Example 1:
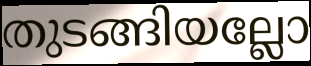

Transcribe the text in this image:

തുടങ്ങിയല്ലോ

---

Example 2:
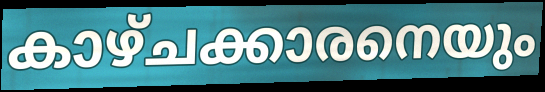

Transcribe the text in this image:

കാഴ്ചക്കാരനെയും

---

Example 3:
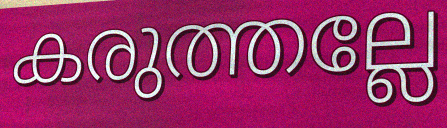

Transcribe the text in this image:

കരുത്തല്ലേ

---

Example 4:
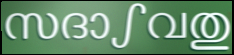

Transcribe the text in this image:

സദാഽവതു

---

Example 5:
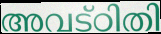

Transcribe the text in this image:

അവട്ഠിതി